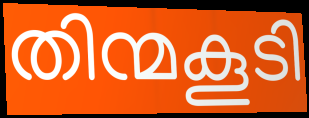
തിന്മകൂടി